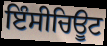
ਇੰਸੀਚਿਊਟ